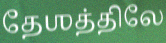
தேஶத்திலே